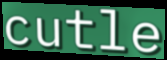
cutle